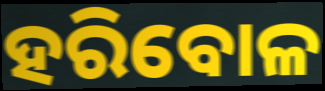
ହରିବୋଳ